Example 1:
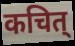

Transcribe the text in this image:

कचित्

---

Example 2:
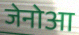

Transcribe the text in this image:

जेनोआ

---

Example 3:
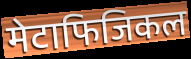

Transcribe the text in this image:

मेटाफिजिकल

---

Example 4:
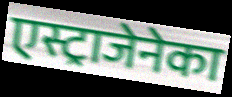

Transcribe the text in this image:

एस्ट्राजेनेका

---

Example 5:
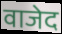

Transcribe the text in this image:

वाजेद